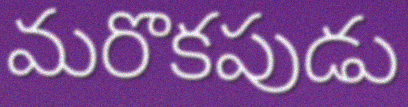
మరొకపుడు